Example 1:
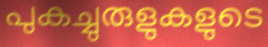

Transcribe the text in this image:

പുകച്ചുരുളുകളുടെ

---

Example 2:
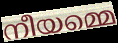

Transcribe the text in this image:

നീയമ്മെ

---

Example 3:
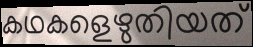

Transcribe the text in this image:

കഥകളെഴുതിയത്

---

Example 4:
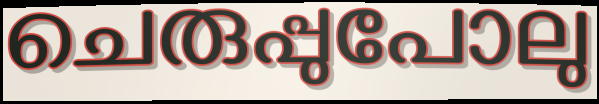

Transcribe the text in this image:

ചെരുപ്പുപോലു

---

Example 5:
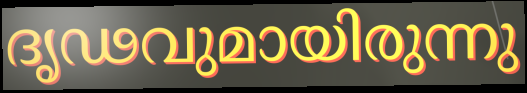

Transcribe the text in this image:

ദൃഢവുമായിരുന്നു